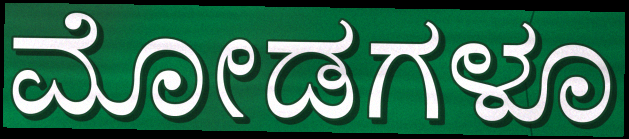
ಮೋಡಗಳೂ